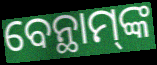
ବେନ୍ଥାମ୍‌ଙ୍କ